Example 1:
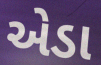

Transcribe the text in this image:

એડા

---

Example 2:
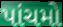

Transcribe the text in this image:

પાંચમો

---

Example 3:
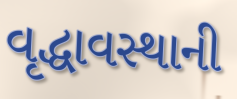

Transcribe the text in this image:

વૃદ્ધાવસ્થાની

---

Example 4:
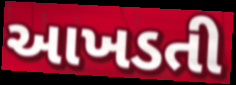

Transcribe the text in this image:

આખડતી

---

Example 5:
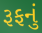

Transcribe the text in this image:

રૂફનું